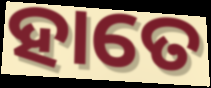
ହାତେ